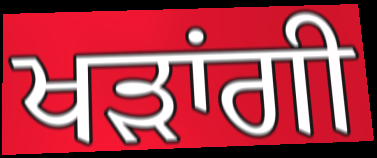
ਖੜਾਂਗੀ